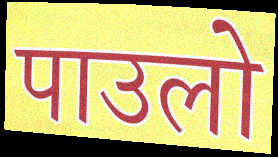
पाउलो